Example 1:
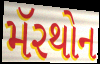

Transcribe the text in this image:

મૅરથોન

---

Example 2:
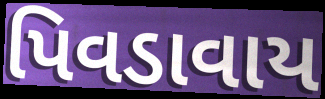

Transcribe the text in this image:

પિવડાવાય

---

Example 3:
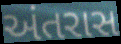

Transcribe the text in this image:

અંતરાસ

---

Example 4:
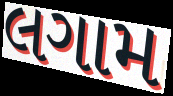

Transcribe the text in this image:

લગામ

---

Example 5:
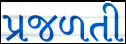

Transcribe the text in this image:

પ્રજળતી